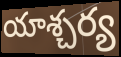
యాశ్చర్య